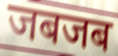
जबजब